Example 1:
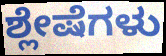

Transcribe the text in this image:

ಶ್ಲೇಷೆಗಳು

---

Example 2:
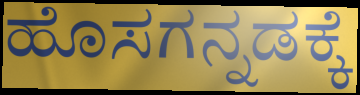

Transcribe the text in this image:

ಹೊಸಗನ್ನಡಕ್ಕೆ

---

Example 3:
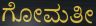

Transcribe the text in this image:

ಗೋಮತೀ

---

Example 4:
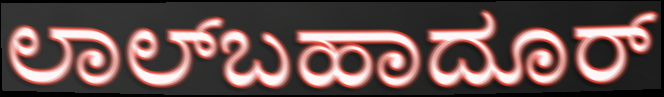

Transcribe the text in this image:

ಲಾಲ್‌ಬಹಾದೂರ್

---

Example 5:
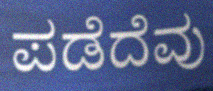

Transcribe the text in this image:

ಪಡೆದೆವು